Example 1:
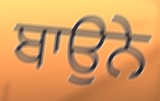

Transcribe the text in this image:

ਬਾਉਨੇ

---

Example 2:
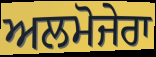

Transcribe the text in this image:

ਅਲਮੋਜੇਰਾ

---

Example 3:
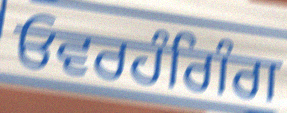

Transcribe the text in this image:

ਓਵਰਹੰਗਿੰਗ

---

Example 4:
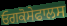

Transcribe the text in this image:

ਓਗਕੋਸੇਫਾਲਸ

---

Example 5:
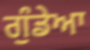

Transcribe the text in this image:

ਗੁੰਡੇਆ